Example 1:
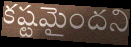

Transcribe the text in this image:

కష్టమైందని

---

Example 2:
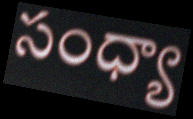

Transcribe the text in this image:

సంధ్యా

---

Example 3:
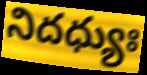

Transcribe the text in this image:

నిదధ్యుః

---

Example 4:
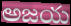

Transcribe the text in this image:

అజయ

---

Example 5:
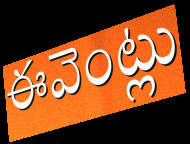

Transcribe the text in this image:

ఈవెంట్లు